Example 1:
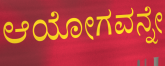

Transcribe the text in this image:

ಆಯೋಗವನ್ನೇ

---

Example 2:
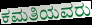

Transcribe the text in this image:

ಕಮತಿಯವರು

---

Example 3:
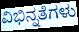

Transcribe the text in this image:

ವಿಭಿನ್ನತೆಗಳು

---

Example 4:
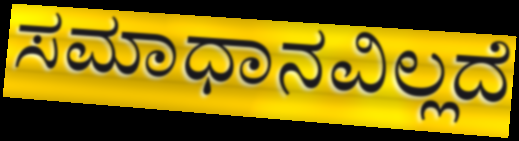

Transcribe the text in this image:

ಸಮಾಧಾನವಿಲ್ಲದೆ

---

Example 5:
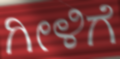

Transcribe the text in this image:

ಗೀಳಿಗೆ